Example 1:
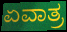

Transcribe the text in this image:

ಏವಾತ್ರ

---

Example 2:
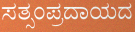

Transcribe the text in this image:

ಸತ್ಸಂಪ್ರದಾಯದ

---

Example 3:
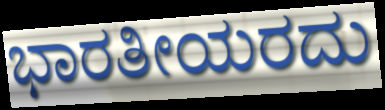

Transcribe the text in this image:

ಭಾರತೀಯರದು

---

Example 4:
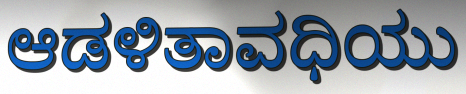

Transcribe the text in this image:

ಆಡಳಿತಾವಧಿಯು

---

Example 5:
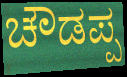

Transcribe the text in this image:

ಚೌಡಪ್ಪ